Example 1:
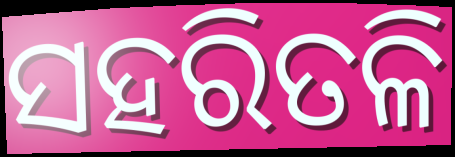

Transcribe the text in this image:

ସହରିତଳି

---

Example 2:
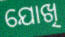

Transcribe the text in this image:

ଯୋଖି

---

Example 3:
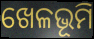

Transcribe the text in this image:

ଖେଳଭୂମି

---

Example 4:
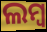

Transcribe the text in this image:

ଲମ୍ୱ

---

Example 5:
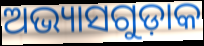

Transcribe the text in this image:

ଅଭ୍ୟାସଗୁଡ଼ାକ